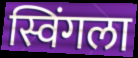
स्विंगला